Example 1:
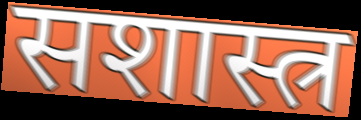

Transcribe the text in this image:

सशास्त्र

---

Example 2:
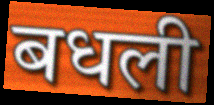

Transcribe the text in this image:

बधली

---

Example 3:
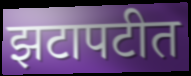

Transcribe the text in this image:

झटापटीत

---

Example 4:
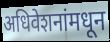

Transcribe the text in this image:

अधिवेशनांमधून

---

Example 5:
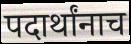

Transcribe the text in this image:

पदार्थांनाच